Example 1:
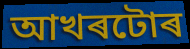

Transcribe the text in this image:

আখৰটোৰ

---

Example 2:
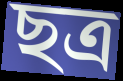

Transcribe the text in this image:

ছত্ৰ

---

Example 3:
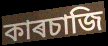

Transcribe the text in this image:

কাৰচাজি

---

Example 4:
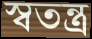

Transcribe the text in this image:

স্ৱতন্ত্ৰ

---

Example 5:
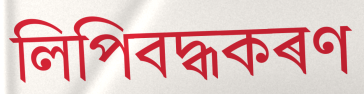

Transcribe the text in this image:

লিপিবদ্ধকৰণ